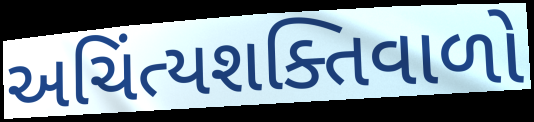
અચિંત્યશક્તિવાળો